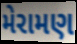
મેરામણ